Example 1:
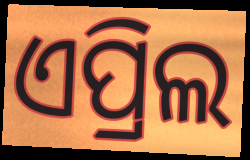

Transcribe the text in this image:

ଏପ୍ରିଲ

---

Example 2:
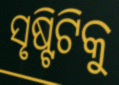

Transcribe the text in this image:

ସୃଷ୍ଟିଟିକୁ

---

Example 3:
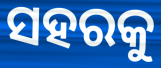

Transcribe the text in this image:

ସହରକୁ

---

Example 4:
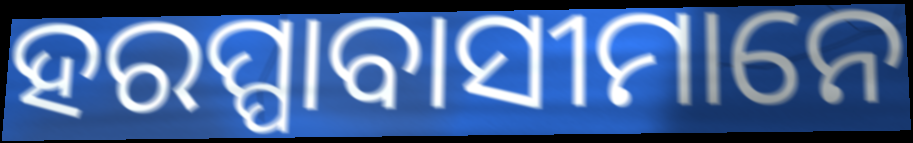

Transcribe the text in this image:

ହରପ୍ପାବାସୀମାନେ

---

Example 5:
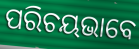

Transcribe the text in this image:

ପରିଚୟଭାବେ